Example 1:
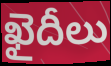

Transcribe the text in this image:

ఖైదీలు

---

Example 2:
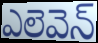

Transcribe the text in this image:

ఎలెవెన్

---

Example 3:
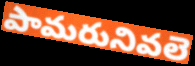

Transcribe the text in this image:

పామరునివలె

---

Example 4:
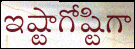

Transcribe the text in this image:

ఇష్టాగోష్టిగా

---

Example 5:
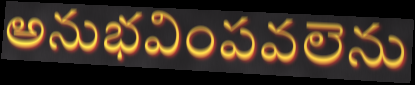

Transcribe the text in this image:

అనుభవింపవలెను